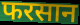
फरसान